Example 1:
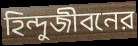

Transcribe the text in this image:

হিন্দুজীবনের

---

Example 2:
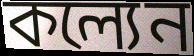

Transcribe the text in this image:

কল্যেন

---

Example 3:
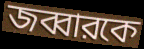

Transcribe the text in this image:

জব্বারকে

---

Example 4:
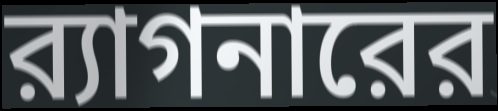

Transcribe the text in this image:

র‍্যাগনারের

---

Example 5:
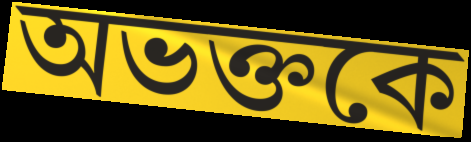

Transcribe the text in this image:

অভক্তকে